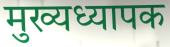
मुख्यध्यापक